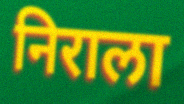
निराला